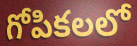
గోపికలలో